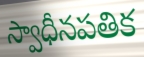
స్వాధీనపతిక